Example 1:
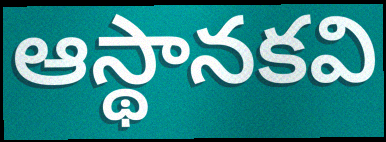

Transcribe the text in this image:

ఆస్థానకవి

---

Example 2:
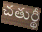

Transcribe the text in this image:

చతుర్థీ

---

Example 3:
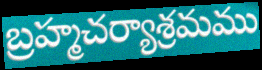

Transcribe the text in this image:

బ్రహ్మచర్యాశ్రమము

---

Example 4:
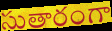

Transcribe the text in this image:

సుతారంగా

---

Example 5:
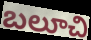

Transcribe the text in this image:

బలూచి